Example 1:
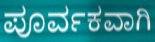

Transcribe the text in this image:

ಪೂರ್ವಕವಾಗಿ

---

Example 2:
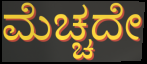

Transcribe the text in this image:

ಮೆಚ್ಚದೇ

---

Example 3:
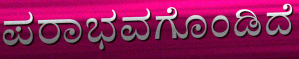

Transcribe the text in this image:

ಪರಾಭವಗೊಂಡಿದೆ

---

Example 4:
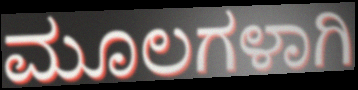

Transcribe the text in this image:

ಮೂಲಗಳಾಗಿ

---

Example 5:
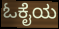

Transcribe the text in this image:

ಓಕೈಯ